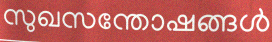
സുഖസന്തോഷങ്ങൾ